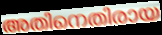
അതിനെതിരായ